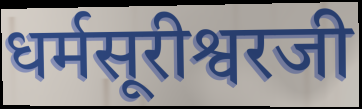
धर्मसूरीश्वरजी